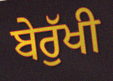
ਬੇਰੁੱਖੀ